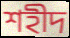
শহীদ